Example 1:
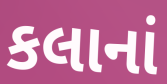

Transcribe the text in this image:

કલાનાં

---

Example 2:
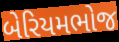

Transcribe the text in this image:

બેરિયમભોજ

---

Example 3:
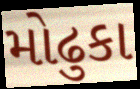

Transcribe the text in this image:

મોઢુકા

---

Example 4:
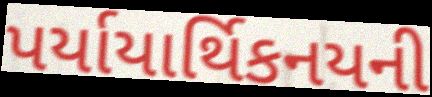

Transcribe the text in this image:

પર્યાયાર્થિકનયની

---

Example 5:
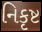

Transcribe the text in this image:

નિકૃષ્ટ